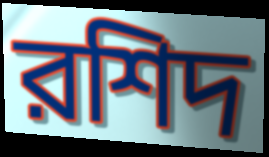
রশিদ